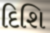
દિશિ